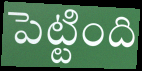
పెట్టింది